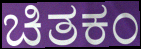
ಚಿತಕಂ